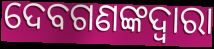
ଦେବଗଣଙ୍କଦ୍ୱାରା